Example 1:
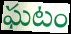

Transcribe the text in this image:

ఘటం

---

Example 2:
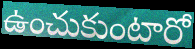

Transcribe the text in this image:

ఉంచుకుంటారో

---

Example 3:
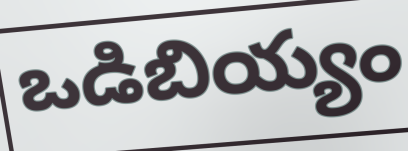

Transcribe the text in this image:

ఒడిబియ్యం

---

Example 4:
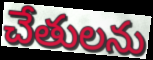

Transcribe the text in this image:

చేతులను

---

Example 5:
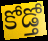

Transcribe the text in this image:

కోడ్తో